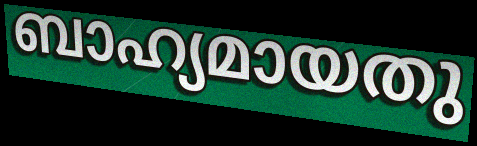
ബാഹ്യമായതു